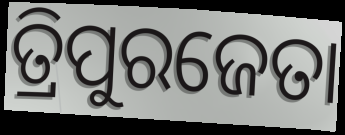
ତ୍ରିପୁରଜେତା